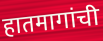
हातमागांची